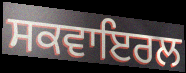
ਸਕਵਾਇਰਲ